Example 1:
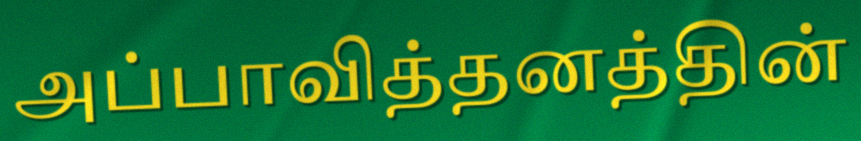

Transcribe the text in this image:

அப்பாவித்தனத்தின்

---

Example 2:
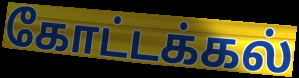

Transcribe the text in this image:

கோட்டக்கல்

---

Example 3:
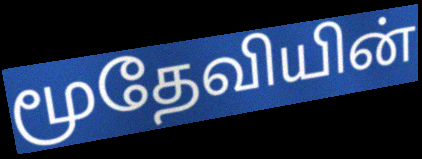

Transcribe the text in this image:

மூதேவியின்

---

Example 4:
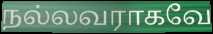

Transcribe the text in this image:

நல்லவராகவே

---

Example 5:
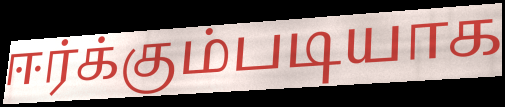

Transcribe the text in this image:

ஈர்க்கும்படியாக